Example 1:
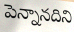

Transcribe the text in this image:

పెన్నానదిని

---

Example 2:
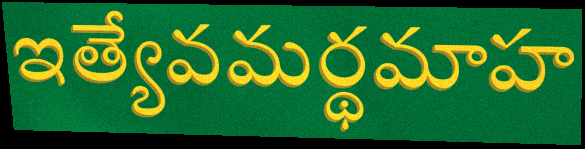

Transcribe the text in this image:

ఇత్యేవమర్థమాహ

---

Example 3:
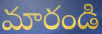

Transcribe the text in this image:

మారండి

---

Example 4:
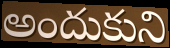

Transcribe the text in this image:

అందుకుని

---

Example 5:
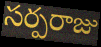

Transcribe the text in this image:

సర్పరాజు